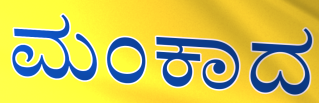
ಮಂಕಾದ